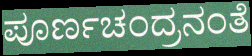
ಪೂರ್ಣಚಂದ್ರನಂತೆ